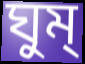
ঘুম্